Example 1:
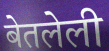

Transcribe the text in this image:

बेतलेली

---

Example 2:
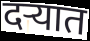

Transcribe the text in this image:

दऱ्यात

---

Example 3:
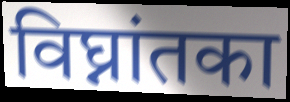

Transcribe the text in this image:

विघ्नांतका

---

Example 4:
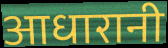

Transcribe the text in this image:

आधारानी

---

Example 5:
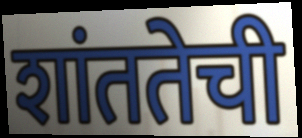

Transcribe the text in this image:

शांततेची